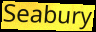
Seabury